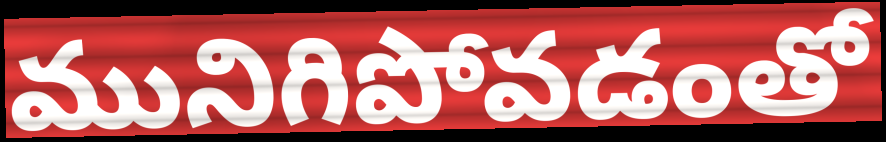
మునిగిపోవడంతో